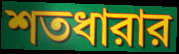
শতধারার